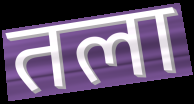
तला